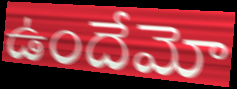
ఉందేమో